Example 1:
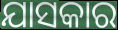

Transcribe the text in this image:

ଯାସକାର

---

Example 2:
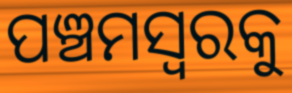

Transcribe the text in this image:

ପଞ୍ଚମସ୍ୱରକୁ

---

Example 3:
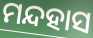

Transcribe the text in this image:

ମନ୍ଦହାସ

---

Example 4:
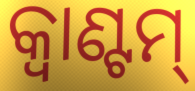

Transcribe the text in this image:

କ୍ୱାଣ୍ଟମ୍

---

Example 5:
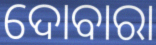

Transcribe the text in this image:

ଦୋବାରା